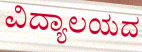
ವಿದ್ಯಾಲಯದ